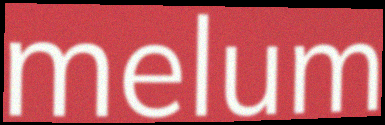
melum